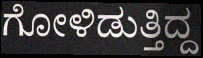
ಗೋಳಿಡುತ್ತಿದ್ದ